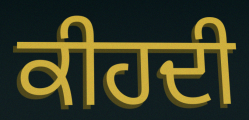
ਕੀਹਦੀ